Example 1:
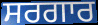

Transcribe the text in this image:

ਸਰਗਾਰ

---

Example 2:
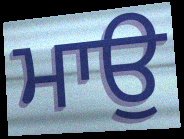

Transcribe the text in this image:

ਮਾਉ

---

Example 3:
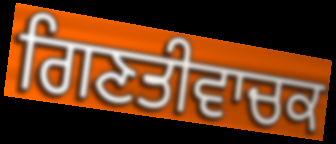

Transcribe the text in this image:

ਗਿਣਤੀਵਾਚਕ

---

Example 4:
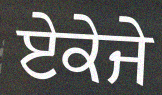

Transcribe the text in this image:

ਏਕੇਜੇ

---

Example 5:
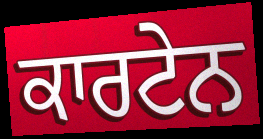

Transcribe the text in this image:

ਕਾਰਟੇਨ